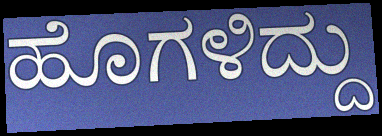
ಹೊಗಳಿದ್ದು